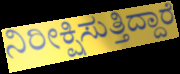
ನಿರೀಕ್ಷಿಸುತ್ತಿದ್ದಾರೆ